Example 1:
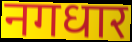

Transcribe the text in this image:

नगधार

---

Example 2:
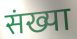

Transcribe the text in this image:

संख्‍या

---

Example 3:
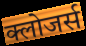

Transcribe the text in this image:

क्लोजर्स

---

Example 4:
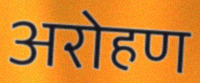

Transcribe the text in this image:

अरोहण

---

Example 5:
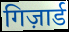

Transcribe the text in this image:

गिज़ार्ड